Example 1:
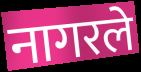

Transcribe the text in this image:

नागरले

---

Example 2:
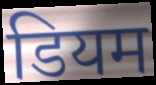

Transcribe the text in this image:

डियम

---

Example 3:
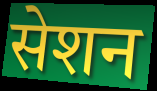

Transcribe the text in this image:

सेशन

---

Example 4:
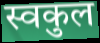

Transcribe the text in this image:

स्वकुल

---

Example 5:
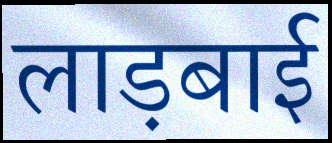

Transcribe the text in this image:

लाड़बाई